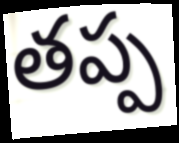
తప్ప